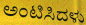
ಅಂಟಿಸಿದಳು